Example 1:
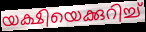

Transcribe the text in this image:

യക്ഷിയെക്കുറിച്ച്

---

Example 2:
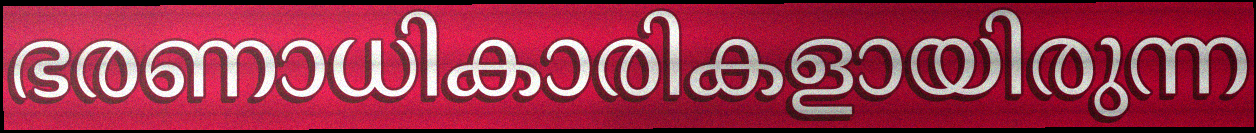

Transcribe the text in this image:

ഭരണാധികാരികളായിരുന്ന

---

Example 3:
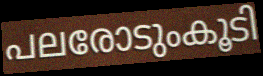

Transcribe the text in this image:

പലരോടുംകൂടി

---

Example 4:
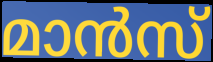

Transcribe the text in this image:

മാൻസ്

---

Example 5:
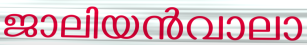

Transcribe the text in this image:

ജാലിയൻവാലാ